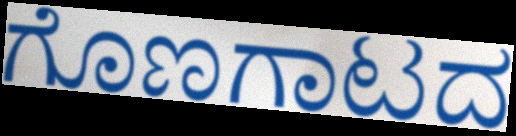
ಗೊಣಗಾಟದ